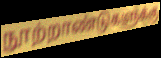
நூற்றாண்டுகளுக்கு